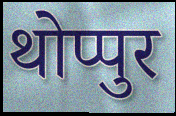
थोप्पुर